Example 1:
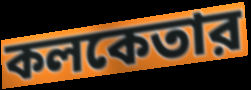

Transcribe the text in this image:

কলকেতার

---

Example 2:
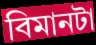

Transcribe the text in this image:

বিমানটা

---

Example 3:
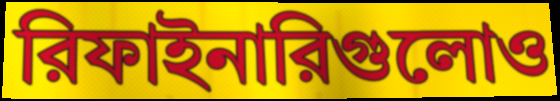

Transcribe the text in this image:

রিফাইনারিগুলোও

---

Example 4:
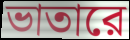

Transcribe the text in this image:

ভাতারে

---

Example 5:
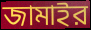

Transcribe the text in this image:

জামাইর